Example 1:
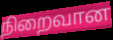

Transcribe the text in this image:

நிறைவான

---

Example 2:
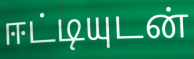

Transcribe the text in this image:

ஈட்டியுடன்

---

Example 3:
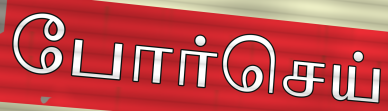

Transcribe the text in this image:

போர்செய்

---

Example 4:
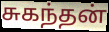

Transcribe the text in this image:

சுகந்தன்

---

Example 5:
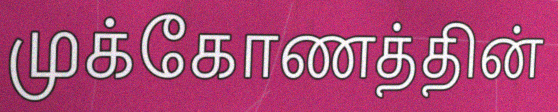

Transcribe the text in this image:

முக்கோணத்தின்